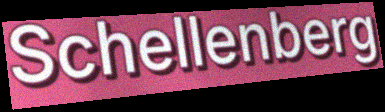
Schellenberg